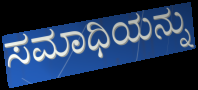
ಸಮಾಧಿಯನ್ನು